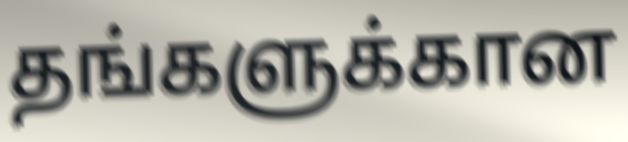
தங்களுக்கான